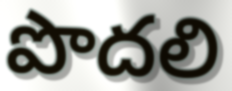
పొదలి